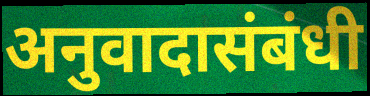
अनुवादासंबंधी